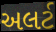
અલર્ટ